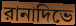
রানাদিভে